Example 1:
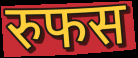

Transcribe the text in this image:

रुफस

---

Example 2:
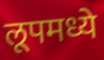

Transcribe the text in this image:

लूपमध्ये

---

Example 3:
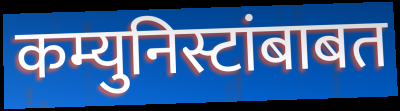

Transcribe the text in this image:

कम्युनिस्टांबाबत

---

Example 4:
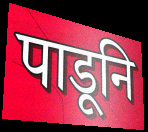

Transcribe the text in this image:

पाडूनि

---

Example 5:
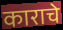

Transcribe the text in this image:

काराचे